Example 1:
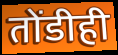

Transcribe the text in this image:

तोंडीही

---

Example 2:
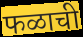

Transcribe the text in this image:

फळाची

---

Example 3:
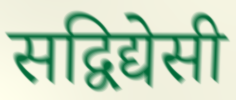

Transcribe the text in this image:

सद्विद्येसी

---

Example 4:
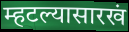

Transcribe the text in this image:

म्हटल्यासारखं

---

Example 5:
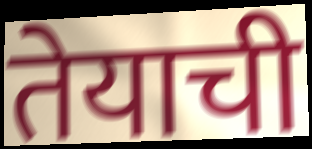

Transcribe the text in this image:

तेयाची